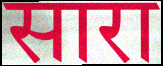
सारा